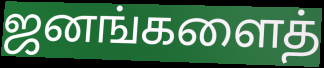
ஜனங்களைத்